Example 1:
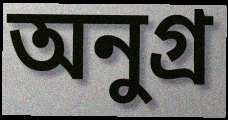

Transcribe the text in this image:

অনুগ্র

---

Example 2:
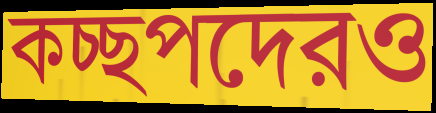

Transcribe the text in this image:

কচ্ছপদেরও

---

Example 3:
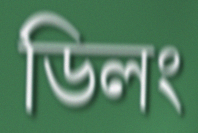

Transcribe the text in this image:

ডিলং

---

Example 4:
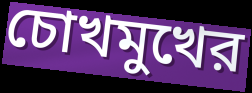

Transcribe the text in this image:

চোখমুখের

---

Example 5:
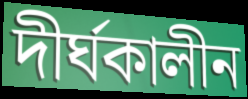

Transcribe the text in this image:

দীর্ঘকালীন